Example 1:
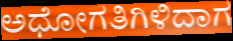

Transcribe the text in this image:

ಅಧೋಗತಿಗಿಳಿದಾಗ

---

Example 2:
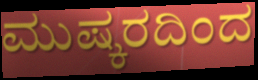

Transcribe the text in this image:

ಮುಷ್ಕರದಿಂದ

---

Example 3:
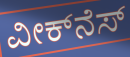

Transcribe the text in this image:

ವೀಕ್‌ನೆಸ್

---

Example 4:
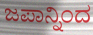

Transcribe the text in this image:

ಜಪಾನ್ನಿಂದ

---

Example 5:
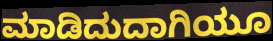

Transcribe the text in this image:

ಮಾಡಿದುದಾಗಿಯೂ